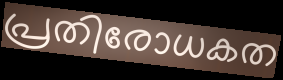
പ്രതിരോധകത